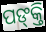
ପଙ୍‍କ୍ତି